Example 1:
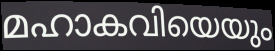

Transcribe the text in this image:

മഹാകവിയെയും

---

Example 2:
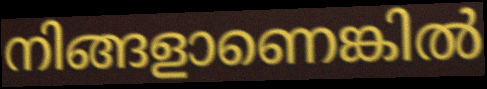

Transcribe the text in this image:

നിങ്ങളാണെങ്കിൽ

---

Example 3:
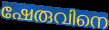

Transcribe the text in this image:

ഷേരുവിനെ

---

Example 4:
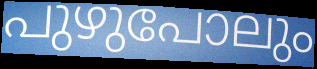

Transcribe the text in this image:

പുഴുപോലും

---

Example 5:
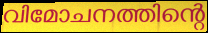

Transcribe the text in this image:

വിമോചനത്തിന്റെ